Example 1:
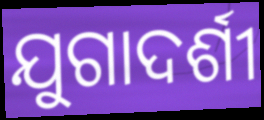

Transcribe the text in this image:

ଯୁଗାଦର୍ଶୀ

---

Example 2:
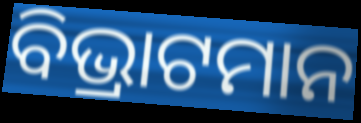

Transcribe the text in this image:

ବିଭ୍ରାଟମାନ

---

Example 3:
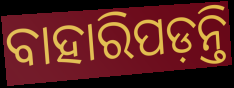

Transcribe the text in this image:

ବାହାରିପଡ଼ନ୍ତି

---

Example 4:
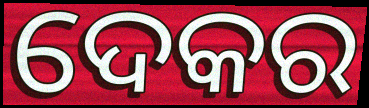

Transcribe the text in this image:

ଦେକର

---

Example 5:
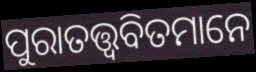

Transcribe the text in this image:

ପୁରାତତ୍ତ୍ୱବିତମାନେ